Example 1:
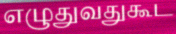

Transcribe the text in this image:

எழுதுவதுகூட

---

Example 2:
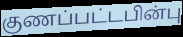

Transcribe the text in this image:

குணப்பட்டபின்பு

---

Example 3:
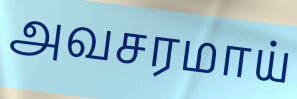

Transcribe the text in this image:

அவசரமாய்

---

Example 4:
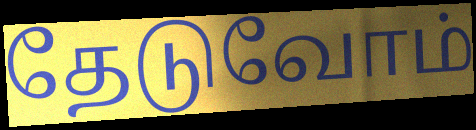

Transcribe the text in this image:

தேடுவோம்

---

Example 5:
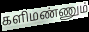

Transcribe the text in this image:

களிமண்ணும்